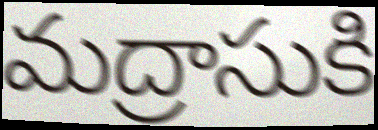
మద్రాసుకి